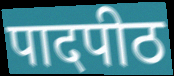
पादपीठ